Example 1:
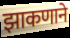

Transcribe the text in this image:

झाकणाने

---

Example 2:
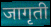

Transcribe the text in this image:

जागृती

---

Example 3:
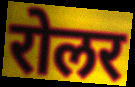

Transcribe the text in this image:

रोलर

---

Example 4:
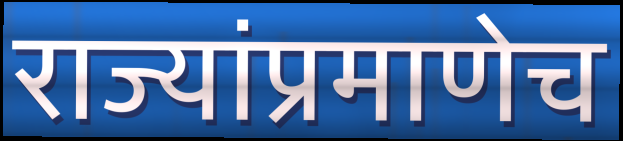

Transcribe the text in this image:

राज्यांप्रमाणेच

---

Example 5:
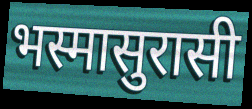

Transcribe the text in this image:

भस्मासुरासी